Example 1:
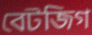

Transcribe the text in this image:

বেটজিগ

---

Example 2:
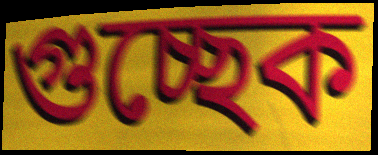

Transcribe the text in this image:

গুচ্ছেক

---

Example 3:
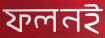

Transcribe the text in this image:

ফলনই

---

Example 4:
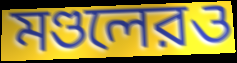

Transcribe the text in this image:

মণ্ডলেরও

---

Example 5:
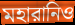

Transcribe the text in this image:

মহারানিও